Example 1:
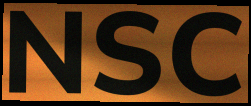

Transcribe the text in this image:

NSC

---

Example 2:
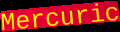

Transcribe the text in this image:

Mercuric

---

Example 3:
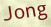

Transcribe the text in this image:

Jong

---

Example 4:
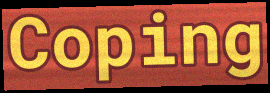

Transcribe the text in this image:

Coping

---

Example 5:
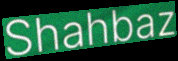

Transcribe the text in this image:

Shahbaz